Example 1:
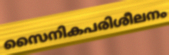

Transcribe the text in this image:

സൈനികപരിശീലനം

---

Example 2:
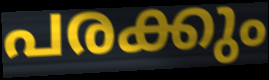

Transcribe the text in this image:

പരക്കും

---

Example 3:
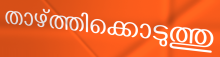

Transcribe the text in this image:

താഴ്ത്തിക്കൊടുത്തു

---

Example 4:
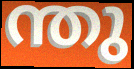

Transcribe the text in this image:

ന്തു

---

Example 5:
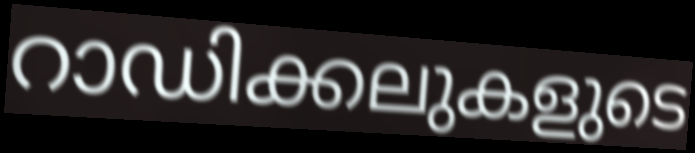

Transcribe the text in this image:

റാഡിക്കലുകളുടെ